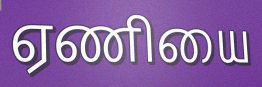
ஏணியை